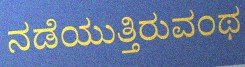
ನಡೆಯುತ್ತಿರುವಂಥ